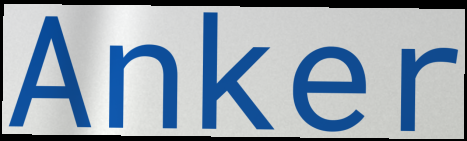
Anker